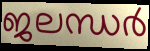
ജലന്ധർ